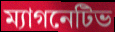
ম্যাগনেটিভ